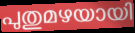
പുതുമഴയായി